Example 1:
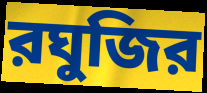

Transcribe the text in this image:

রঘুজির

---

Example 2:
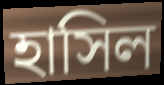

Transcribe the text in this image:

হাসিল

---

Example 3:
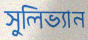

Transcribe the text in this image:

সুলিভ্যান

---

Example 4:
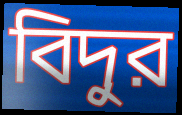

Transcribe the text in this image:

বিদুর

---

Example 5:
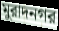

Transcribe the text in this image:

মুরাদনগর